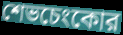
শেভচেংকোর